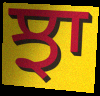
ਝਾ